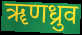
ॠणध्रुव